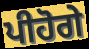
ਪੀਹੋਗੇ